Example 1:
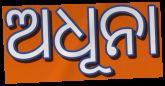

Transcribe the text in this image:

ଅଧୂନା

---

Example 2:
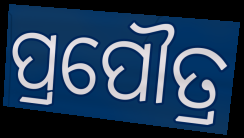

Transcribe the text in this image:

ପ୍ରପୌତ୍ର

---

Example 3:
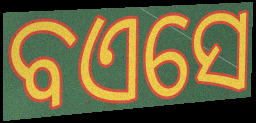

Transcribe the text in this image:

ବଏସେ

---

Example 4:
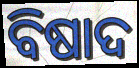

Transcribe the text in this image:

ବିଷାଦ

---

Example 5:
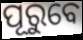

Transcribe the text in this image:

ପୂରୁବେ